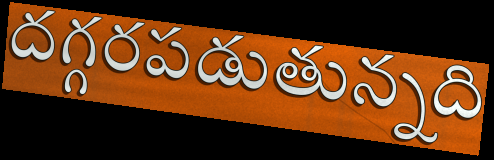
దగ్గరపడుతున్నది